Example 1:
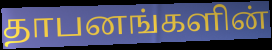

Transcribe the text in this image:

தாபனங்களின்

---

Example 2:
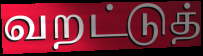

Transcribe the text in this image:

வறட்டுத்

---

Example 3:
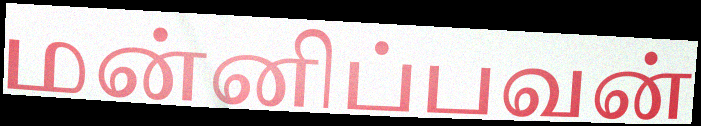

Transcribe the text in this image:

மன்னிப்பவன்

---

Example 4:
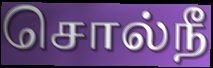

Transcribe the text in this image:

சொல்நீ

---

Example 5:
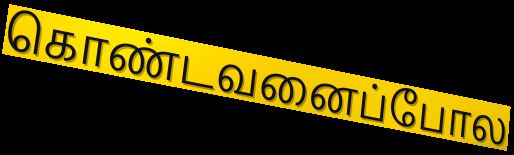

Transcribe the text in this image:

கொண்டவனைப்போல